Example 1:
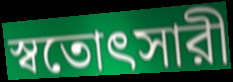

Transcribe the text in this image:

স্বতোৎসারী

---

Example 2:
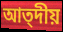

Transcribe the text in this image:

আত্দীয়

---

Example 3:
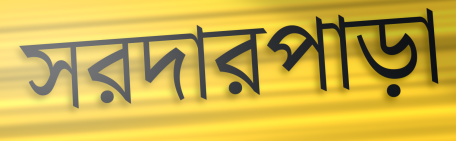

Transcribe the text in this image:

সরদারপাড়া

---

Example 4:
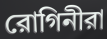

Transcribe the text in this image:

রোগিনীরা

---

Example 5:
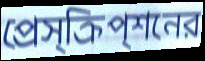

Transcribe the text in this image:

প্রেস্‌ক্রিপ্‌শনের